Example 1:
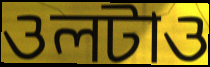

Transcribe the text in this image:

ওলটাও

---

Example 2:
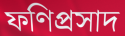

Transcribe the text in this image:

ফণিপ্রসাদ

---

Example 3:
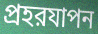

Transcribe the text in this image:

প্রহরযাপন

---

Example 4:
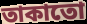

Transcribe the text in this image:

তাকাতো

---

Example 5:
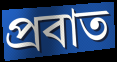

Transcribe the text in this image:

প্রবাত